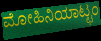
ಮೋಹಿನಿಯಾಟ್ಟಂ